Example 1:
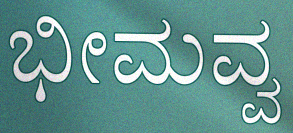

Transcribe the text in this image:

ಭೀಮವ್ವ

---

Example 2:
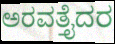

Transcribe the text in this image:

ಅರವತ್ತೈದರ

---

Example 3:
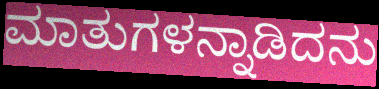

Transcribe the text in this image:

ಮಾತುಗಳನ್ನಾಡಿದನು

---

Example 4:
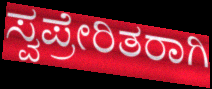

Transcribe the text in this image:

ಸ್ವಪ್ರೇರಿತರಾಗಿ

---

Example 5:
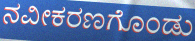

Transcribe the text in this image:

ನವೀಕರಣಗೊಂಡು